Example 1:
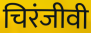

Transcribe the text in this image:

चिरंजीवी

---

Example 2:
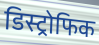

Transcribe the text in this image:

डिस्ट्रोफिक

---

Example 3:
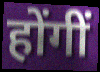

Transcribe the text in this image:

होंगीं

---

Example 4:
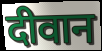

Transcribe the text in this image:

दीवान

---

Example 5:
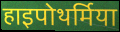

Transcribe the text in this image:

हाइपोथर्मिया